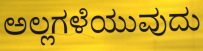
ಅಲ್ಲಗಳೆಯುವುದು